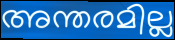
അന്തരമില്ല